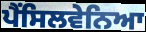
ਪੈਂਸਿਲਵੇਨਿਆ